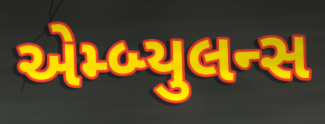
એમ્બ્યુલન્સ